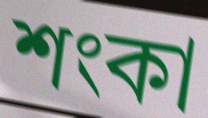
শংকা